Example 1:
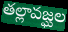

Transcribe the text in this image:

తల్లావజ్ఘల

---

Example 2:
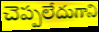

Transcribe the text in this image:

చెప్పలేదుగాని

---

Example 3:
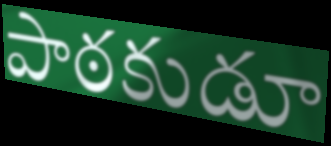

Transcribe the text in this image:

పాఠకుడూ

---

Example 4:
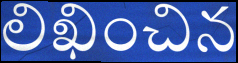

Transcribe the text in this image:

లిఖించిన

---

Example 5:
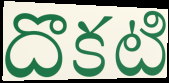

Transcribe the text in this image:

దొకటి